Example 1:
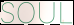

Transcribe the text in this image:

SOUL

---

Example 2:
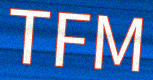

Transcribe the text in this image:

TFM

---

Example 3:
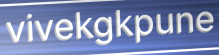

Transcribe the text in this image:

vivekgkpune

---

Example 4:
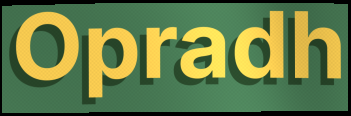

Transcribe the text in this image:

Opradh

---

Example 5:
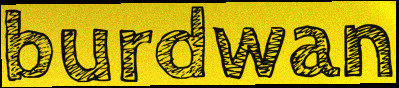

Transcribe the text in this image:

burdwan